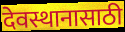
देवस्थानासाठी